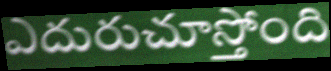
ఎదురుచూస్తోంది